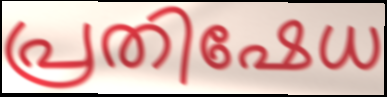
പ്രതിഷേധ